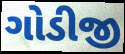
ગોડીજી